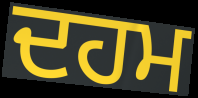
ਦਹਮ